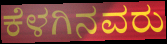
ಕೆಳಗಿನವರು